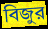
বিজুর